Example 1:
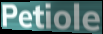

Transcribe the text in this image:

Petiole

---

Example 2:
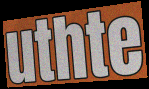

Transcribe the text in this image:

uthte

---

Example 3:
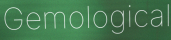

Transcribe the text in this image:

Gemological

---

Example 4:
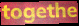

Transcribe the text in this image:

togethe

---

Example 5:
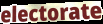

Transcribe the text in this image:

electorate